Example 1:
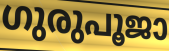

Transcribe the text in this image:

ഗുരുപൂജാ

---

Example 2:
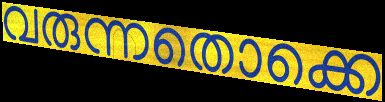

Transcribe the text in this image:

വരുന്നതൊക്കെ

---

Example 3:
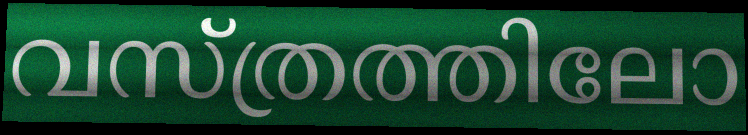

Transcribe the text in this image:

വസ്ത്രത്തിലോ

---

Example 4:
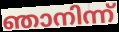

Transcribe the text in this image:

ഞാനിന്ന്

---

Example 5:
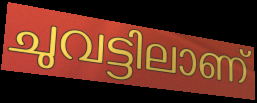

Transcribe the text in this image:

ചുവട്ടിലാണ്